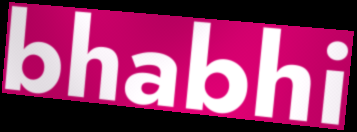
bhabhi